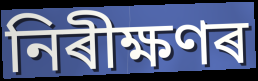
নিৰীক্ষণৰ